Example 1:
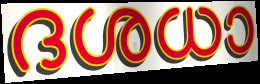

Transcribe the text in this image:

ദശധാ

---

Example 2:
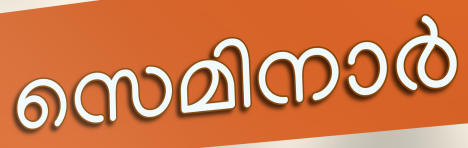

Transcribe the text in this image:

സെമിനാർ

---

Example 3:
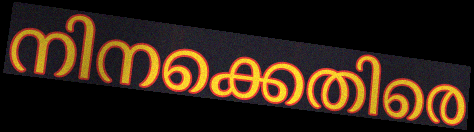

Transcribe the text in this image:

നിനക്കെതിരെ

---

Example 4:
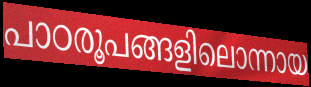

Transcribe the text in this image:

പാഠരൂപങ്ങളിലൊന്നായ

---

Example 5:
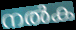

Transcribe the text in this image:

നൽക